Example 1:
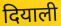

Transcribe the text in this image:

दियाली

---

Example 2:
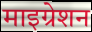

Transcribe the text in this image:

माइग्रेशन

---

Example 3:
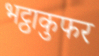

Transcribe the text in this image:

भट्ठाकुफर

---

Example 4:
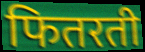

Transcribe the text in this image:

फितरती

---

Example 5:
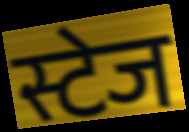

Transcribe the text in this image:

स्‍टेज